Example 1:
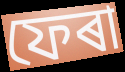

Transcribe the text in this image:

ফেৰা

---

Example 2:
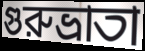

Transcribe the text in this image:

গুৰুভ্ৰাতা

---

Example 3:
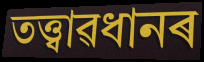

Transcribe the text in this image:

তত্ত্বাৱধানৰ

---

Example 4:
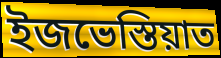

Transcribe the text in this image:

ইজভেস্তিয়াত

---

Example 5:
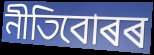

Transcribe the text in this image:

নীতিবোৰৰ